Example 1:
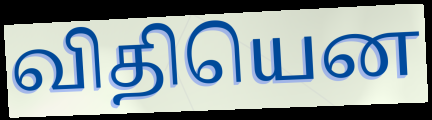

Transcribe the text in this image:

விதியென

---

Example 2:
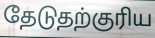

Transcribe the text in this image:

தேடுதற்குரிய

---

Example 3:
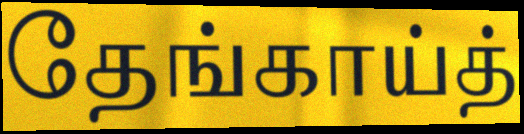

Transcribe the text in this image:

தேங்காய்த்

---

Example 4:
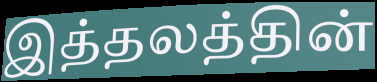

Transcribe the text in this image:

இத்தலத்தின்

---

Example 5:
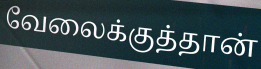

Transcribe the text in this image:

வேலைக்குத்தான்